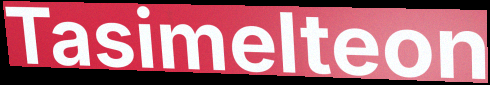
Tasimelteon